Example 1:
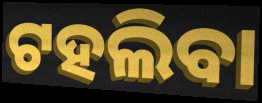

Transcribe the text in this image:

ଟହଲିବା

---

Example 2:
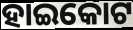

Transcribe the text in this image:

ହାଇକୋଟ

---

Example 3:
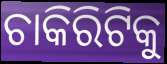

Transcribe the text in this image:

ଚାକିରିଟିକୁ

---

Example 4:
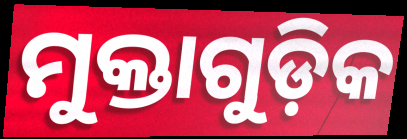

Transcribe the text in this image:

ମୁକ୍ତାଗୁଡ଼ିକ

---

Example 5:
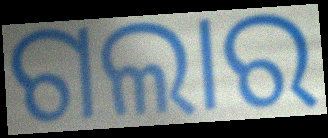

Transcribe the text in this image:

ଗଲାର